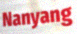
Nanyang